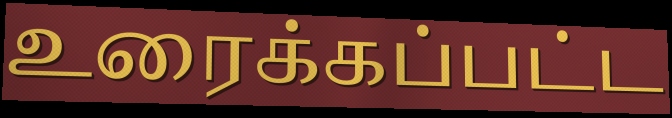
உரைக்கப்பட்ட